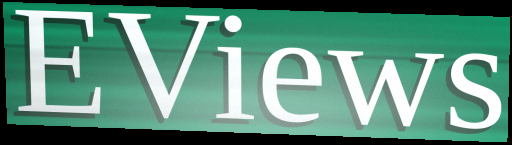
EViews